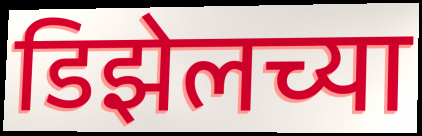
डिझेलच्या